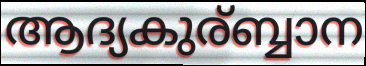
ആദ്യകുര്ബ്ബാന